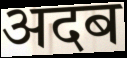
अदब